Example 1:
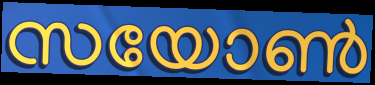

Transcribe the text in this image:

സയോൺ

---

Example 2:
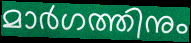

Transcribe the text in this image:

മാർഗത്തിനും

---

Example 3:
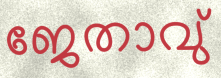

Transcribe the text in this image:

ജേതാവു്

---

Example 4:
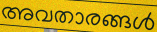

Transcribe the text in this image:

അവതാരങ്ങൾ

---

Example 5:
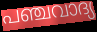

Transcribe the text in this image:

പഞ്ചവാദ്യ